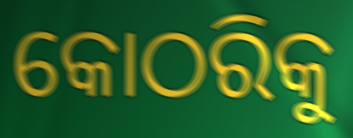
କୋଠରିକୁ